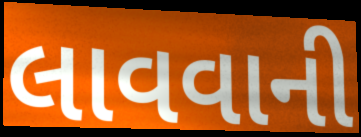
લાવવાની